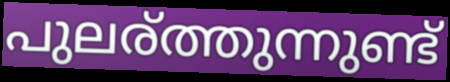
പുലര്ത്തുന്നുണ്ട്